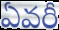
ఏవరీ